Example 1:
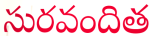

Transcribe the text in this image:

సురవందిత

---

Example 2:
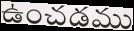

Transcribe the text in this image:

ఉంచడము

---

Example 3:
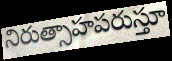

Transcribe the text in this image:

నిరుత్సాహపరుస్తూ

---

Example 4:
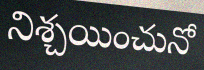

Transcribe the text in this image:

నిశ్చయించునో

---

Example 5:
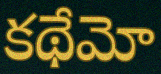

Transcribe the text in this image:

కథేమో